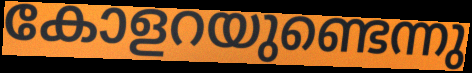
കോളറയുണ്ടെന്നു